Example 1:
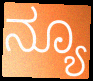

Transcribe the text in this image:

ನ್ಯೂ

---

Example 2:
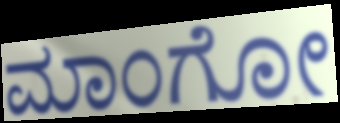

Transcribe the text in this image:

ಮಾಂಗೋ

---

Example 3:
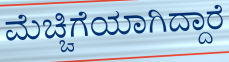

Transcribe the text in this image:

ಮೆಚ್ಚಿಗೆಯಾಗಿದ್ದಾರೆ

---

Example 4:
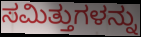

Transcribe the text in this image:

ಸಮಿತ್ತುಗಳನ್ನು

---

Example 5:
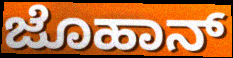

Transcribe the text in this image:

ಜೊಹಾನ್